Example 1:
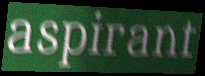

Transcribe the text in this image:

aspirant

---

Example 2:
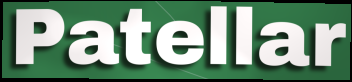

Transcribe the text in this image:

Patellar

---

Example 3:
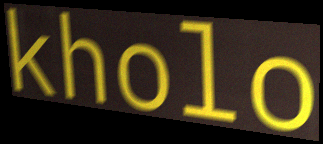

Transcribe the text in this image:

kholo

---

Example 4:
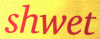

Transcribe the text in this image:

shwet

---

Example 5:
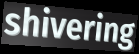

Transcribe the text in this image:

shivering